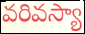
వరివస్యా